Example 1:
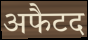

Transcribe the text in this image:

अफैटद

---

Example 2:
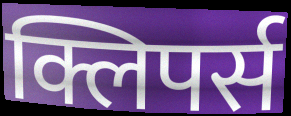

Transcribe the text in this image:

क्लिपर्स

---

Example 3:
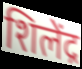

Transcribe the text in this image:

शिलेंद्र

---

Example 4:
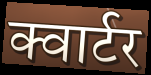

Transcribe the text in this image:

क्‍वार्टर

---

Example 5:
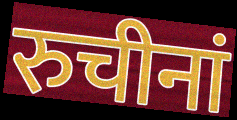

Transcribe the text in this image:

रुचीनां